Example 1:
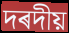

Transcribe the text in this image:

দৰদীয়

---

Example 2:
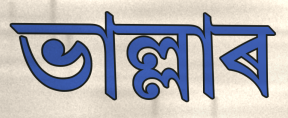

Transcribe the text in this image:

ভাল্লাৰ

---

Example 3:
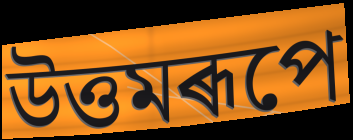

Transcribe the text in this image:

উত্তমৰূপে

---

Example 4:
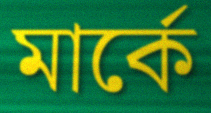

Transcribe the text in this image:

মাৰ্কে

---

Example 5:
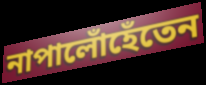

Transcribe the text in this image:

নাপালোঁহেঁতেন